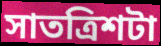
সাতত্ৰিশটা